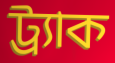
ট্র্যাক